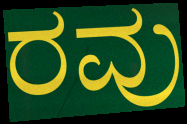
ರವು